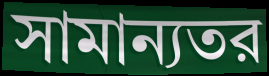
সামান্যতর